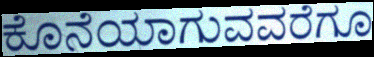
ಕೊನೆಯಾಗುವವರೆಗೂ